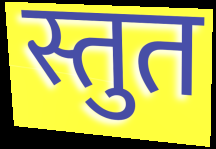
स्तुत